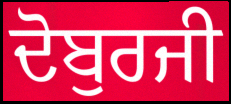
ਦੋਬੁਰਜੀ